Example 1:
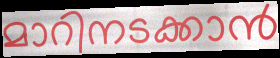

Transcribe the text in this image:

മാറിനടക്കാൻ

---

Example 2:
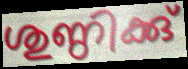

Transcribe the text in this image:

ശുണ്ഠിക്കു്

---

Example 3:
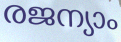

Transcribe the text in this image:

രജന്യാം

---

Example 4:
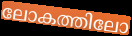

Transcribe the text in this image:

ലോകത്തിലോ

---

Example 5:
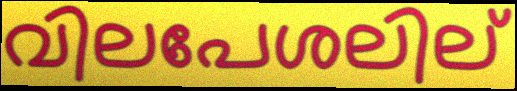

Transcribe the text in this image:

വിലപേശലില്